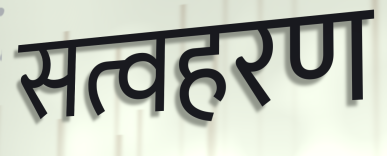
सत्वहरण